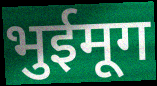
भुईमूग